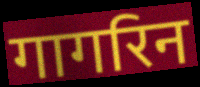
गागरिन